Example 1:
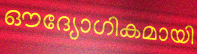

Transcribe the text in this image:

ഔദ്യോഗികമായി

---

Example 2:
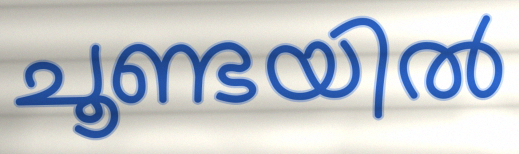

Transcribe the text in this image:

ചൂണ്ടയിൽ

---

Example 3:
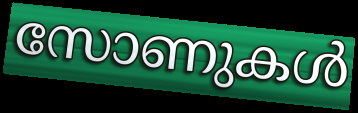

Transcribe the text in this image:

സോണുകൾ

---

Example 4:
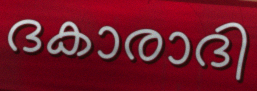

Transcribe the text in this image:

ദകാരാദി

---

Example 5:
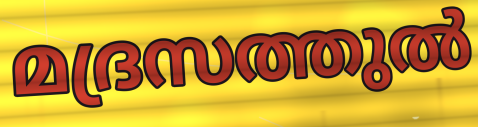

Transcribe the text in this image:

മദ്രസത്തുൽ